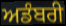
ਅਡੰਬਰੀ